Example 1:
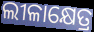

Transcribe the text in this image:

ଲୀଳାକ୍ଷେତ୍ର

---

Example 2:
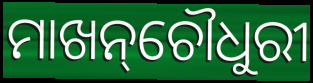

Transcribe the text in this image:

ମାଖନ୍‌ଚୌଧୁରୀ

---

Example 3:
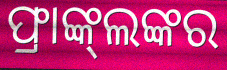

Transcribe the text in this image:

ଫ୍ରାଙ୍କ୍‌ଲଙ୍କର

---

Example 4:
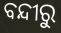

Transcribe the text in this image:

ବନ୍ଦୀରୁ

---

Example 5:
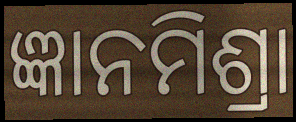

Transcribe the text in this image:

ଜ୍ଞାନମିଶ୍ରା